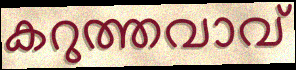
കറുത്തവാവ്